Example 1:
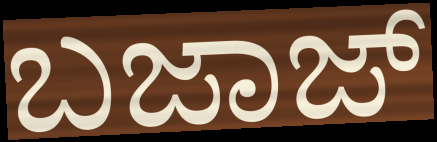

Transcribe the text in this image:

ಬಜಾಜ್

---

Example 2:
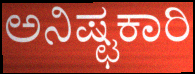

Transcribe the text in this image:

ಅನಿಷ್ಟಕಾರಿ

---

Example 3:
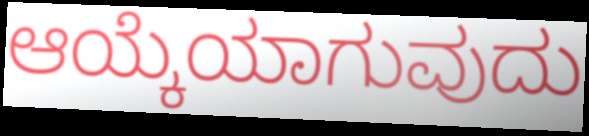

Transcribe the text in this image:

ಆಯ್ಕೆಯಾಗುವುದು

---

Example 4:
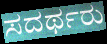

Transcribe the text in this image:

ಸದರ್ಥರು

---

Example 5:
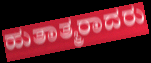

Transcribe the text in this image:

ಹುತಾತ್ಮರಾದರು